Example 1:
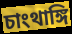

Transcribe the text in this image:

চাংথাঙ্গি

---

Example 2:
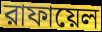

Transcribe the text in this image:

রাফায়েল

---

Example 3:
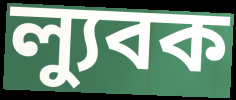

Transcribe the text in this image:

ল্যুবক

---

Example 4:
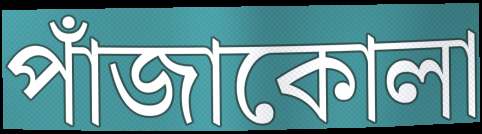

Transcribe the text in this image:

পাঁজাকোলা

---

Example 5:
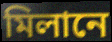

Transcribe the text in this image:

মিলানে